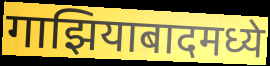
गाझियाबादमध्ये